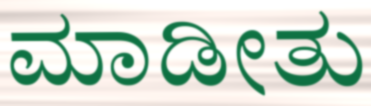
ಮಾಡೀತು